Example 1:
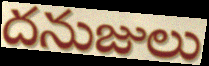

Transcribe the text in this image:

దనుజులు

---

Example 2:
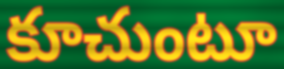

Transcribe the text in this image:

కూచుంటూ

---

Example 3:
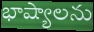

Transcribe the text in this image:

భాష్యాలను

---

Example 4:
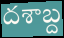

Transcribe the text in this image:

దశాబ్ద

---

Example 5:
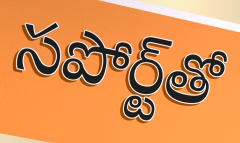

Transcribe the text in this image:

సపోర్ట్‌తో